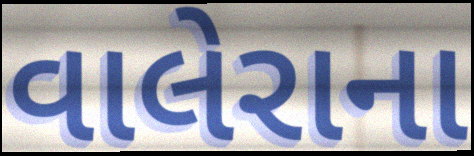
વાલેરાના